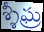
శ్శీఘ్ర